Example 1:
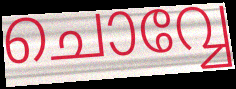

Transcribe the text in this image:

ചൊവ്വേ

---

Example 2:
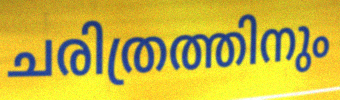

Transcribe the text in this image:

ചരിത്രത്തിനും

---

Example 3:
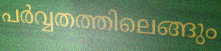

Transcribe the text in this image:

പർവ്വതത്തിലെങ്ങും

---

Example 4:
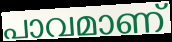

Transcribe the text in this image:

പാവമാണ്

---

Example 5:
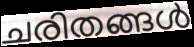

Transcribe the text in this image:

ചരിതങ്ങൾ